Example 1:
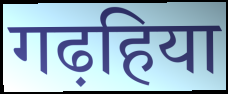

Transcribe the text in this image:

गढ़हिया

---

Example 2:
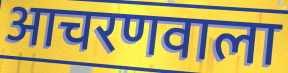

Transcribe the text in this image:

आचरणवाला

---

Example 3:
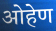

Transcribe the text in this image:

ओहेण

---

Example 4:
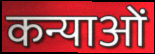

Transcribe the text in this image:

कन्‍याओं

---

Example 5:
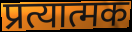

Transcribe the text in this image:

प्रत्यात्मक